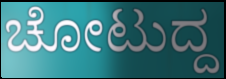
ಚೋಟುದ್ದ